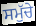
ਸਮੁੱਚੇ